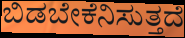
ಬಿಡಬೇಕೆನಿಸುತ್ತದೆ